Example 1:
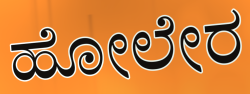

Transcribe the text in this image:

ಹೋಲೇರ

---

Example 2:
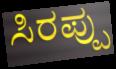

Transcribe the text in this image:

ಸಿರಪ್ಪು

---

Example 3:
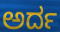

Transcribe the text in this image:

ಅರ್ದ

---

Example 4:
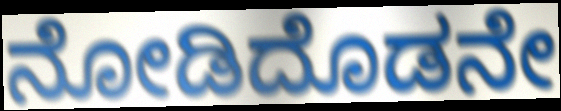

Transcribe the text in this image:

ನೋಡಿದೊಡನೇ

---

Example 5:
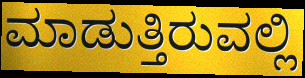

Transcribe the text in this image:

ಮಾಡುತ್ತಿರುವಲ್ಲಿ